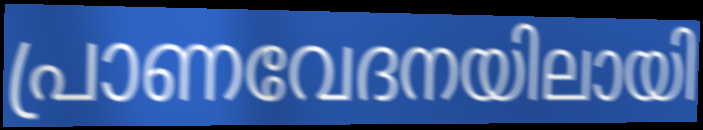
പ്രാണവേദനയിലായി